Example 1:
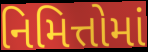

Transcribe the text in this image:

નિમિત્તોમાં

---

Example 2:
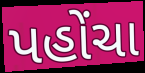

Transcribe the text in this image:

પહોંચા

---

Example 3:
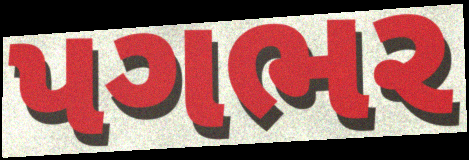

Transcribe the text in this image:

પગભર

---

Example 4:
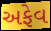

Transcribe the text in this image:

અફેવ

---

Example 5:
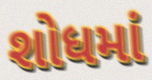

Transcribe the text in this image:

શોધમાં